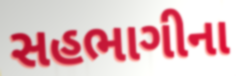
સહભાગીના